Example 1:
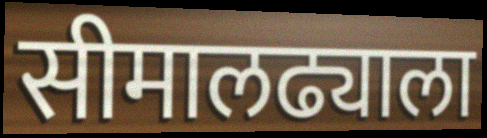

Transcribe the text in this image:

सीमालढ्याला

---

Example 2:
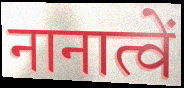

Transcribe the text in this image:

नानात्वें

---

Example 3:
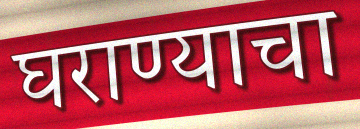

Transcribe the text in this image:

घराण्याचा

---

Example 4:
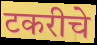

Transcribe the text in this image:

टकरीचे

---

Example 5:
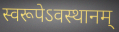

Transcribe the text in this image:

स्वरूपेऽवस्थानम्